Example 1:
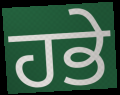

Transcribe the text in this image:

ਹਭੇ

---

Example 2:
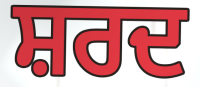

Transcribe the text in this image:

ਸ਼ਰਦ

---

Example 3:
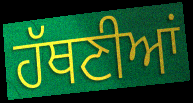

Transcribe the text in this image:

ਹੱਥਣੀਆਂ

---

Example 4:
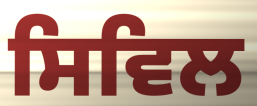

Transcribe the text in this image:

ਸਿਵਿਲ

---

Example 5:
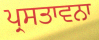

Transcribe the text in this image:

ਪ੍ਰਸਤਾਵਨਾ